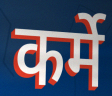
कर्मे